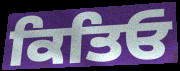
ਕਿਤਿਓ